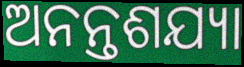
ଅନନ୍ତଶଯ୍ୟା